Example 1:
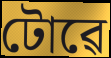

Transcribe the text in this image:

টোৱে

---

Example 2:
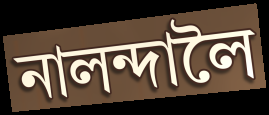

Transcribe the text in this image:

নালন্দালৈ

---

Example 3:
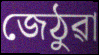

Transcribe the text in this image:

জেঠুৱা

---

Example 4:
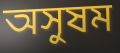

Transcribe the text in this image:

অসুষম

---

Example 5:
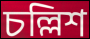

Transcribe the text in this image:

চল্লিশ